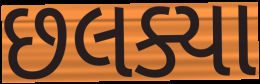
છલક્યા